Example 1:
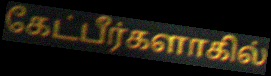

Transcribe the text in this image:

கேட்பீர்களாகில்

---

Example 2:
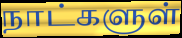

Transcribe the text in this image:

நாட்களுள்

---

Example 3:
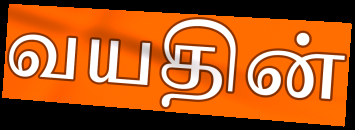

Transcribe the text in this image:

வயதின்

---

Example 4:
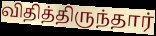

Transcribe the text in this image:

விதித்திருந்தார்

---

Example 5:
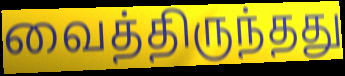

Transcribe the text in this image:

வைத்திருந்தது